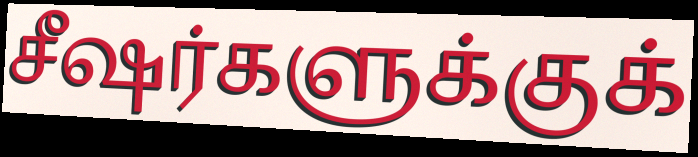
சீஷர்களுக்குக்